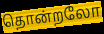
தொன்றலோ